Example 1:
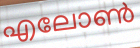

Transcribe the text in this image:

എലോൺ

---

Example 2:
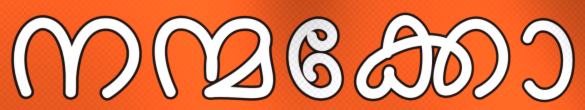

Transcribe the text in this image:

നന്മക്കോ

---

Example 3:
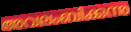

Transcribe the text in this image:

അവലംബിക്കുന്നു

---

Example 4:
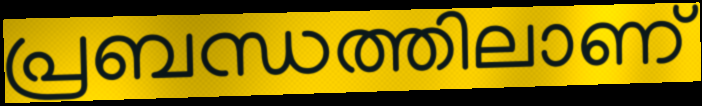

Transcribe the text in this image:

പ്രബന്ധത്തിലാണ്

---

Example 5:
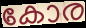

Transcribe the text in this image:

കോര